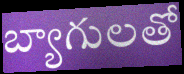
బ్యాగులతో